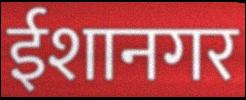
ईशानगर